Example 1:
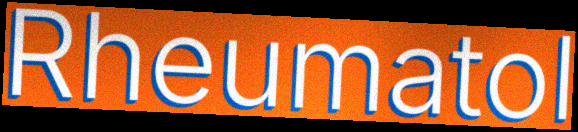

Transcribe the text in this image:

Rheumatol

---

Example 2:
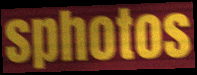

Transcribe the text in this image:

sphotos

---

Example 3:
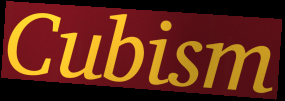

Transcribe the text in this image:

Cubism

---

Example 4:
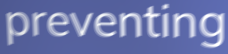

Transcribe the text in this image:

preventing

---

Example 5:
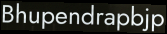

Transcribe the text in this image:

Bhupendrapbjp